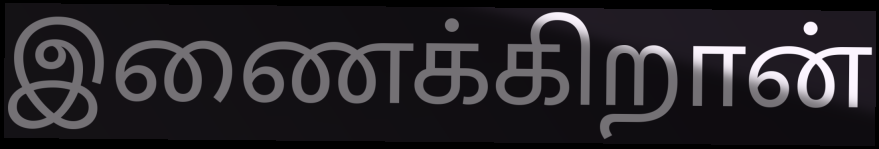
இணைக்கிறான்